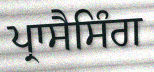
ਪ੍ਰਾਸੈਸਿੰਗ